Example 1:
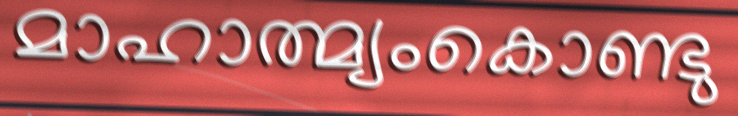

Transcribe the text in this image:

മാഹാത്മ്യംകൊണ്ടു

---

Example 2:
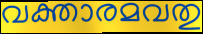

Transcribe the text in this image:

വക്താരമവതു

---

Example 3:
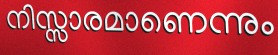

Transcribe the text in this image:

നിസ്സാരമാണെന്നും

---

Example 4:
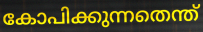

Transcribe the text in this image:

കോപിക്കുന്നതെന്ത്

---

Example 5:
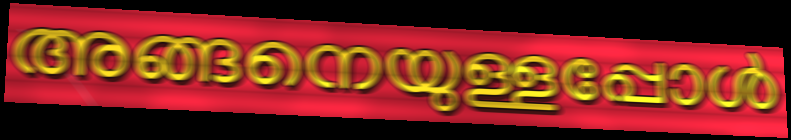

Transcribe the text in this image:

അങ്ങനെയുള്ളപ്പോൾ